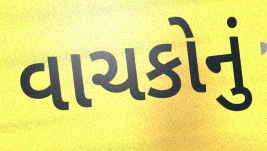
વાચકોનું